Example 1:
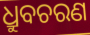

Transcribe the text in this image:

ଧ୍ରୁବଚରଣ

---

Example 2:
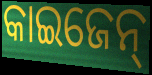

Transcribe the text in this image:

କାଇଜେନ୍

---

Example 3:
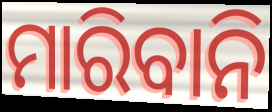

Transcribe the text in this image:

ମାରିବାନି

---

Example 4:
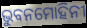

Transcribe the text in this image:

ଭୁବନମୋହିନୀ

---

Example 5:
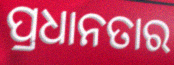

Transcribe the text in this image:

ପ୍ରଧାନତାର